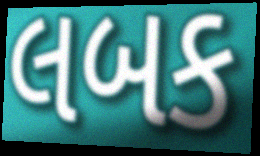
લબક